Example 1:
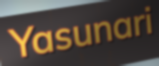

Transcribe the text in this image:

Yasunari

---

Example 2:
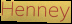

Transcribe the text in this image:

Henney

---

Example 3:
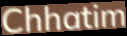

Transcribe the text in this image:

Chhatim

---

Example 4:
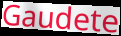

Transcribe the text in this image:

Gaudete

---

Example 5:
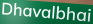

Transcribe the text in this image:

Dhavalbhai